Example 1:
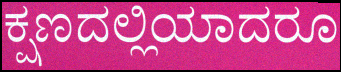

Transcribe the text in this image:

ಕ್ಷಣದಲ್ಲಿಯಾದರೂ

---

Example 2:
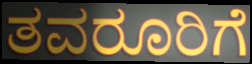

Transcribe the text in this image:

ತವರೂರಿಗೆ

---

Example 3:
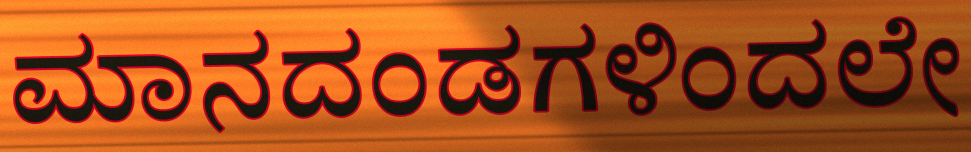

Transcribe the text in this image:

ಮಾನದಂಡಗಳಿಂದಲೇ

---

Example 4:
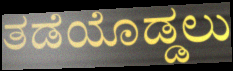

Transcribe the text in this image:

ತಡೆಯೊಡ್ಡಲು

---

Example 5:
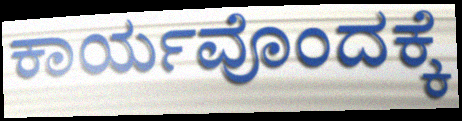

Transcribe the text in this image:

ಕಾರ್ಯವೊಂದಕ್ಕೆ